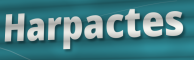
Harpactes